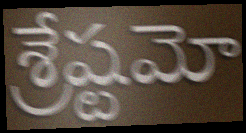
శ్రేష్టమో